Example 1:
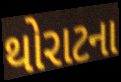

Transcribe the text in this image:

થોરાટના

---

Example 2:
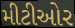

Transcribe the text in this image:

મીટીઓર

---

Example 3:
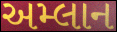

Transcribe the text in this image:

અમ્લાન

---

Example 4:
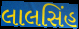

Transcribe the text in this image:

લાલસિંહ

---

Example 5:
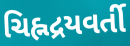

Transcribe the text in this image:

ચિહ્નદ્રયવર્તી